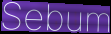
Sebum